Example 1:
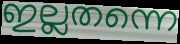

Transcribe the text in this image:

ഇല്ലതന്നെ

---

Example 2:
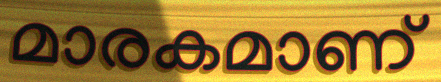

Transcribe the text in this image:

മാരകമാണ്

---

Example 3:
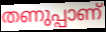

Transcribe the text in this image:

തണുപ്പാണ്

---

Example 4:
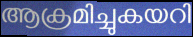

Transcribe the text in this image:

ആക്രമിച്ചുകയറി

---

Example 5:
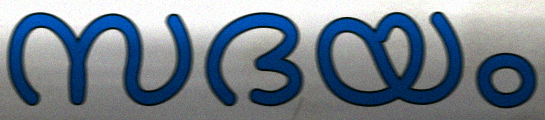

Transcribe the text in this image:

സദയം